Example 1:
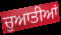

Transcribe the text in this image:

ਚੁਆਤੀਆਂ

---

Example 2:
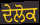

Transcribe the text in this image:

ਦੇਲੋਕ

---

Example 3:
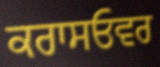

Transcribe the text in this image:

ਕਰਾਸਓਵਰ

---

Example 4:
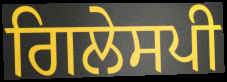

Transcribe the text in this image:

ਗਿਲੇਸਪੀ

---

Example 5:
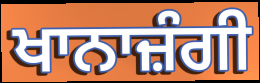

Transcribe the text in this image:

ਖਾਨਾਜ਼ੰਗੀ